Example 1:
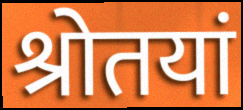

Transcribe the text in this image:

श्रोतयां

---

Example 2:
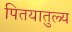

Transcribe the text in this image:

पितयातुल्य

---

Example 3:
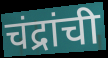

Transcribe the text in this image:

चंद्रांची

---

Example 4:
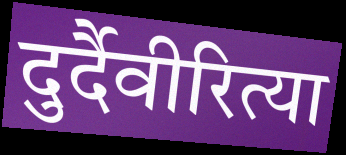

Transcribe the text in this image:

दुर्दैवीरित्या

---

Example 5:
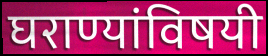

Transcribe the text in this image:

घराण्यांविषयी